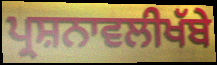
ਪ੍ਰਸ਼ਨਾਵਲੀਖੱਬੇ